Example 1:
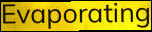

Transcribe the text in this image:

Evaporating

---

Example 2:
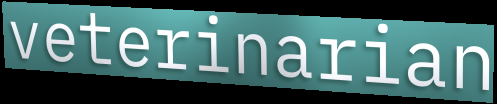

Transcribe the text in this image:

veterinarian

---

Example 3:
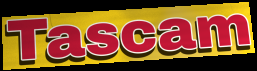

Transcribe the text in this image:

Tascam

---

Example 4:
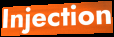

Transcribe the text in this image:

Injection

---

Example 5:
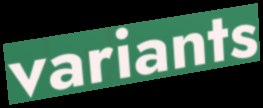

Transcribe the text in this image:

variants